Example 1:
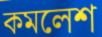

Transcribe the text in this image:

কমলেশ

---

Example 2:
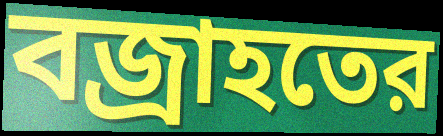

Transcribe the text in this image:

বজ্রাহতের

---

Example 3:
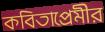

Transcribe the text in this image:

কবিতাপ্রেমীর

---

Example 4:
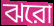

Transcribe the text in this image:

ঝরো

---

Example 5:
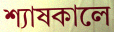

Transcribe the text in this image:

শ্যাষকালে